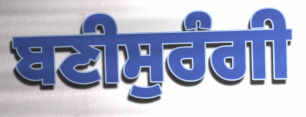
ਬਣੀਸੁਰੰਗੀ